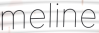
meline